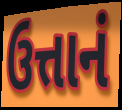
ઉત્તાનં